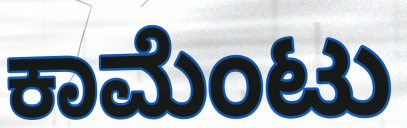
ಕಾಮೆಂಟು